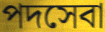
পদসেবা